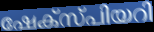
ഷേക്സ്പിയറി